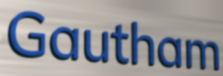
Gautham